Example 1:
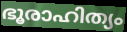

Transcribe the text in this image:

ഭൂരാഹിത്യം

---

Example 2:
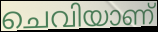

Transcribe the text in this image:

ചെവിയാണ്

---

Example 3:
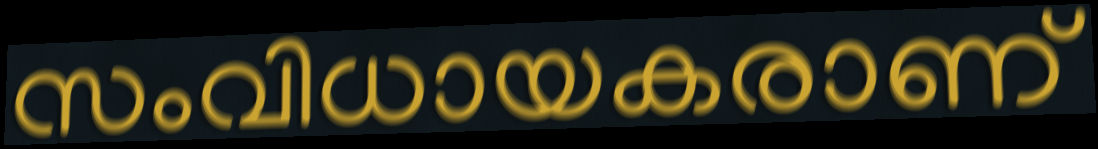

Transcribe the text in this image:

സംവിധായകരാണ്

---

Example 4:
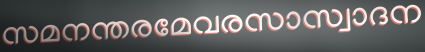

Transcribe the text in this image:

സമനന്തരമേവരസാസ്വാദന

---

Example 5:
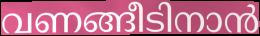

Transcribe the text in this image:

വണങ്ങീടിനാൻ